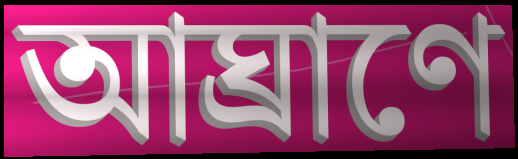
আঘ্রাণে